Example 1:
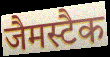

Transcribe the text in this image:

जैमस्टैक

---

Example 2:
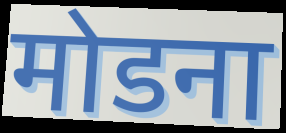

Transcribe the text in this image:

मोडना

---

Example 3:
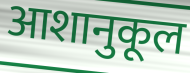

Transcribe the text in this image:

आशानुकूल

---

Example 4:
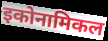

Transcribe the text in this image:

इकोनामिकल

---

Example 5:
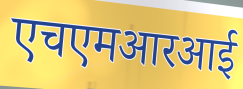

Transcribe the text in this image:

एचएमआरआई